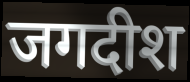
जगदीश